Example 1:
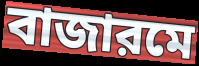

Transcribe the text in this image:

বাজারমে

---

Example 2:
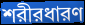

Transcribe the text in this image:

শরীরধারণ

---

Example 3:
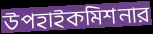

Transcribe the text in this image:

উপহাইকমিশনার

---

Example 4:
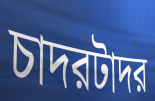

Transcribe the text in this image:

চাদরটাদর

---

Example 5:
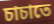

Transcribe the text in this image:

চাচাতে